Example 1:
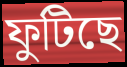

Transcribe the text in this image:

ফুটিছে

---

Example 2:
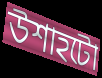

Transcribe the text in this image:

উশাহটো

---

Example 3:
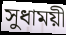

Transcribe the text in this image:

সুধাময়ী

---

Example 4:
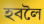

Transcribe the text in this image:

হবলৈ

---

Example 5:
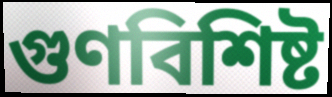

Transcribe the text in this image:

গুণবিশিষ্ট